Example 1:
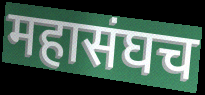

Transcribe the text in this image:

महासंघच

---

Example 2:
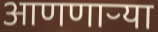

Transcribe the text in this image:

आणणाऱ्या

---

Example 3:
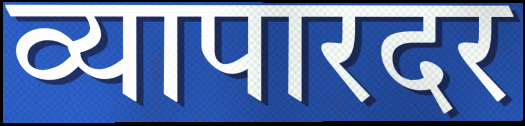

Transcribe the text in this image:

व्यापारदर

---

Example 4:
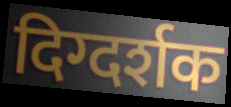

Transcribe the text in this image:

दिग्‍दर्शक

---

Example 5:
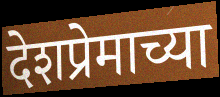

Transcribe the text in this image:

देशप्रेमाच्या